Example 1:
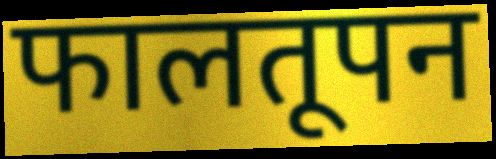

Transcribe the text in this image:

फालतूपन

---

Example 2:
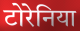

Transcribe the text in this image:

टोरेनिया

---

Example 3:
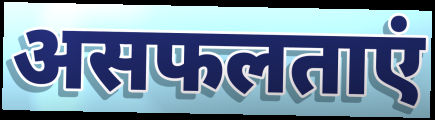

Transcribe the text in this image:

असफलताएं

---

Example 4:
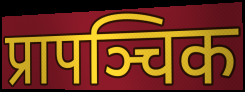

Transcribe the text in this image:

प्रापञ्चिक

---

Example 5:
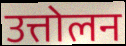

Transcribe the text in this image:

उत्तोलन